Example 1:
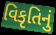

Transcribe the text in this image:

વિકૃતિનું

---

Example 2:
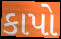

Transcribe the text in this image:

કાપો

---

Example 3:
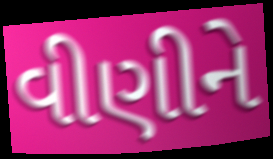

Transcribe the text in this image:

વીણીને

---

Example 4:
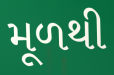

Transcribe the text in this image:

મૂળથી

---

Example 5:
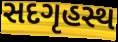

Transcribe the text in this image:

સદગૃહસ્થ